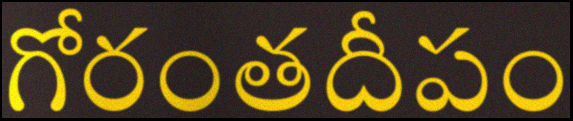
గోరంతదీపం